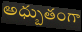
అధ్బుతంగా